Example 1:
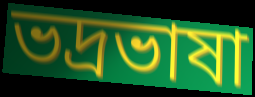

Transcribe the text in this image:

ভদ্রভাষা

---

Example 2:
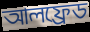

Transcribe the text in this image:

আলফ্রেড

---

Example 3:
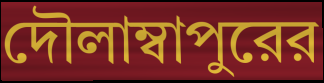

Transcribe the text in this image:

দৌলাম্বাপুরের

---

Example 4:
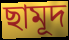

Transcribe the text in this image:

ছামূদ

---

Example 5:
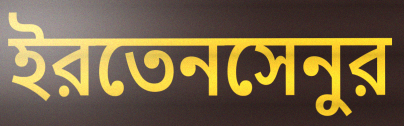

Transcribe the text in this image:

ইরতেনসেনুর